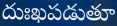
దుఃఖపడుతూ